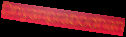
Dnyanprabodhan